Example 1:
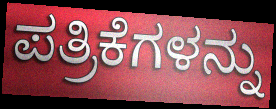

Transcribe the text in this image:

ಪತ್ರಿಕೆಗಳನ್ನು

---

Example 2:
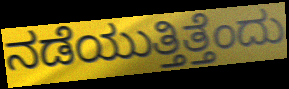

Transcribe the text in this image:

ನಡೆಯುತ್ತಿತ್ತೆಂದು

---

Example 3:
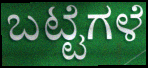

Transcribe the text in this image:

ಬಟ್ಟೆಗಳೆ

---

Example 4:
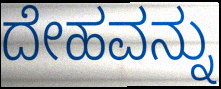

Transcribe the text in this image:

ದೇಹವನ್ನು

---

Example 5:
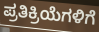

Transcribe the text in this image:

ಪ್ರತಿಕ್ರಿಯೆಗಳಿಗೆ